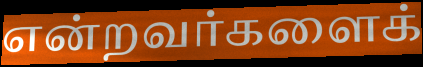
என்றவர்களைக்